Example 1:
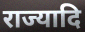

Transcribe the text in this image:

राज्यादि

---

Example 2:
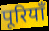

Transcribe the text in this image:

पूरियाँ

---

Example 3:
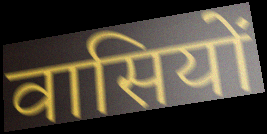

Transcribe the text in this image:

वासियों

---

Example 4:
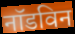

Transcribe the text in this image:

नॉडविन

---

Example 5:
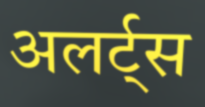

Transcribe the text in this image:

अलर्ट्स